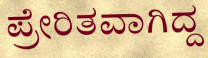
ಪ್ರೇರಿತವಾಗಿದ್ದ